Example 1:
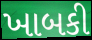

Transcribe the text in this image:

ખાબકી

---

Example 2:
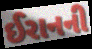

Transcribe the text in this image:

ઈરાનની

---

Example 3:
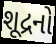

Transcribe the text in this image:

શૂદ્રનો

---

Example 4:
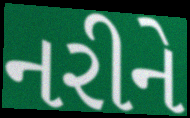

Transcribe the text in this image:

નરીને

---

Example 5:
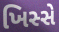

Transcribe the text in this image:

ખિસ્સે